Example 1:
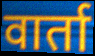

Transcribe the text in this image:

वार्ता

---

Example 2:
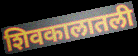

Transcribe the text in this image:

शिवकालातली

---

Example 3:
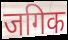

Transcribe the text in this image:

जगिक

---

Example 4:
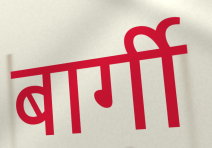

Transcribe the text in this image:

बार्गी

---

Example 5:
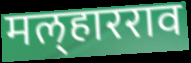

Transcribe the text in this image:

मल्हारराव